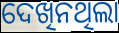
ଦେଖିନଥିଲା